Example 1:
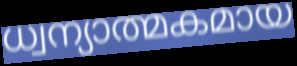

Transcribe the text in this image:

ധ്വന്യാത്മകമായ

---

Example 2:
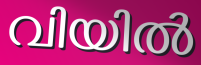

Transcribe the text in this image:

വിയിൽ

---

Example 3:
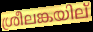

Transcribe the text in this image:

ശ്രീലങ്കയില്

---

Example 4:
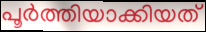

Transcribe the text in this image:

പൂർത്തിയാക്കിയത്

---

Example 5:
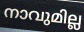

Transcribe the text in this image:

നാവുമില്ല